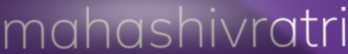
mahashivratri